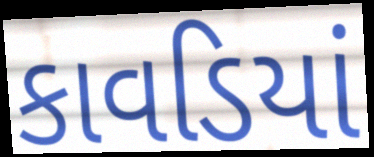
કાવડિયાં